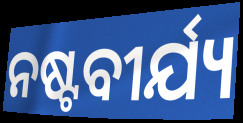
ନଷ୍ଟବୀର୍ଯ୍ୟ